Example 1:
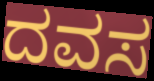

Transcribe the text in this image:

ದವಸ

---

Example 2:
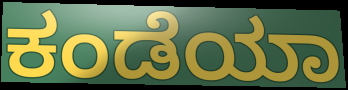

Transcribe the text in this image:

ಕಂಡೆಯಾ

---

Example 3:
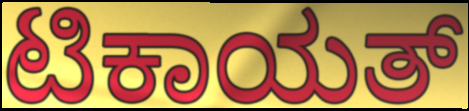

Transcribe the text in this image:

ಟಿಕಾಯತ್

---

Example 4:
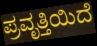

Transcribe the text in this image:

ಪ್ರವೃತ್ತಿಯಿದೆ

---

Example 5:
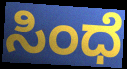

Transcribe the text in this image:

ಸಿಂಧೆ